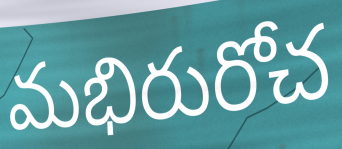
మభిరురోచ